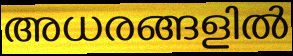
അധരങ്ങളിൽ